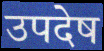
उपदेष